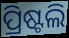
ପ୍ରିଷ୍ଟଲି